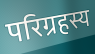
परिग्रहस्य